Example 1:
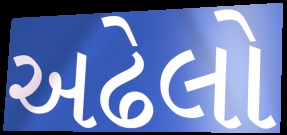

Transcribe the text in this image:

અઢેલો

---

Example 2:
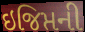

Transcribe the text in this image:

ઇજિપ્તની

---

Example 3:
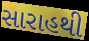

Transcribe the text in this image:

સારાહથી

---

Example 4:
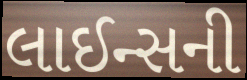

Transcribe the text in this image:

લાઈન્સની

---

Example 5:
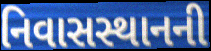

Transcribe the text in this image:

નિવાસસ્થાનની